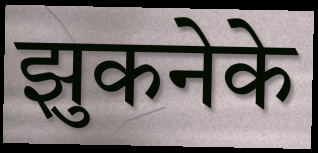
झुकनेके